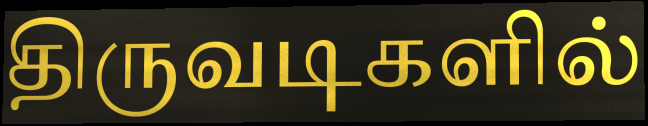
திருவடிகளில்